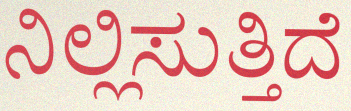
ನಿಲ್ಲಿಸುತ್ತಿದೆ